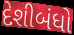
દેશીબંધો